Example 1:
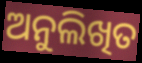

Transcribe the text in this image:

ଅନୁଲିଖିତ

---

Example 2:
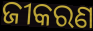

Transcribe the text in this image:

ଜୀକରଣ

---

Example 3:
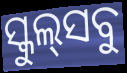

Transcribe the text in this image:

ସ୍କୁଲ୍‍ସବୁ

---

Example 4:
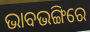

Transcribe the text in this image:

ଭାବଭଙ୍ଗିରେ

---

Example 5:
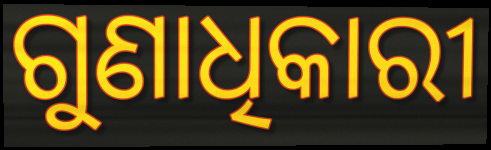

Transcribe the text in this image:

ଗୁଣାଧିକାରୀ